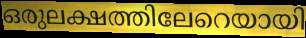
ഒരുലക്ഷത്തിലേറെയായി